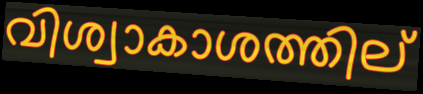
വിശ്വാകാശത്തില്